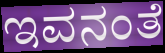
ಇವನಂತೆ